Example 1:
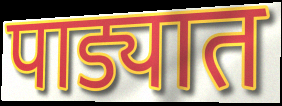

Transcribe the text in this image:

पाड्यात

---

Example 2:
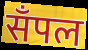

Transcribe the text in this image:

सँपल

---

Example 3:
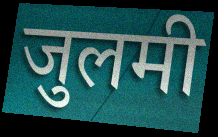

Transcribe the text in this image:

जुलमी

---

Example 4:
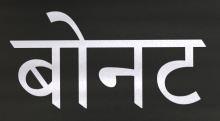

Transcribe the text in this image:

बोनट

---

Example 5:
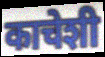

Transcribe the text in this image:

काचेशी